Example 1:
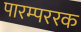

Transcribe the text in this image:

पारम्पररक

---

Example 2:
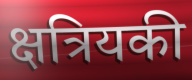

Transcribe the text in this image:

क्षत्रियकी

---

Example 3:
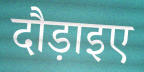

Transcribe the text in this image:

दौड़ाइए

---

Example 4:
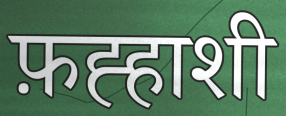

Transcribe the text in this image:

फ़ह्हाशी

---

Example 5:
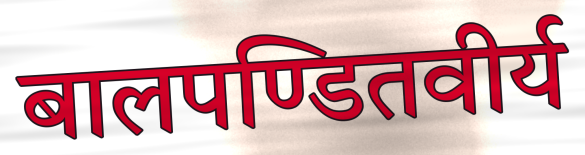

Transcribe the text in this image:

बालपण्डितवीर्य